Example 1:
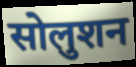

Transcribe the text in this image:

सोलुशन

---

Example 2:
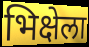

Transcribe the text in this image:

भिक्षेला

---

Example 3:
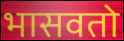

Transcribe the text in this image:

भासवतो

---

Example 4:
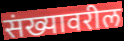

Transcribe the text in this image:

संख्यावरील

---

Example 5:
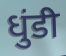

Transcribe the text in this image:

धुंडी